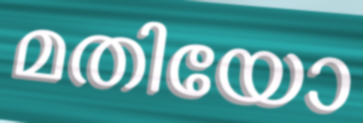
മതിയോ